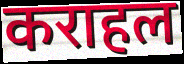
कराहल